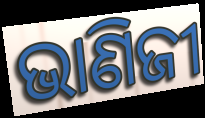
ଭାଣିଜୀ